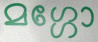
മഗ്ഗോ